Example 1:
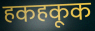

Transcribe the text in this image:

हकहकूक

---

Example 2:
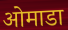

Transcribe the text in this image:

ओमाडा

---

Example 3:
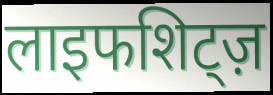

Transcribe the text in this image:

लाइफशिट्ज़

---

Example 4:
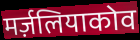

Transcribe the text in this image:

मर्ज़लियाकोव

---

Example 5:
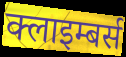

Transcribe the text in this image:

क्लाइम्बर्स